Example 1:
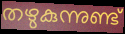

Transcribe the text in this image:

തഴുകുന്നുണ്ട്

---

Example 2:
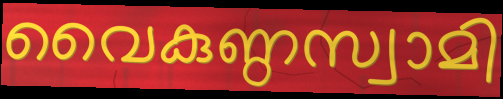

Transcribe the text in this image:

വൈകുണ്ഠസ്വാമി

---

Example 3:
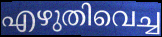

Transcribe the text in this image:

എഴുതിവെച്ച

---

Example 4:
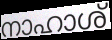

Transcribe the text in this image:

നാഹാശ്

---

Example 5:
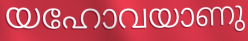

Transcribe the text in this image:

യഹോവയാണു